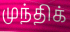
முந்திக்